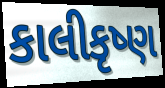
કાલીકૃષ્ણ